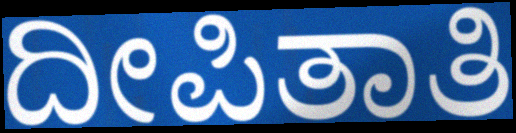
ದೀಪಿತಾತಿ